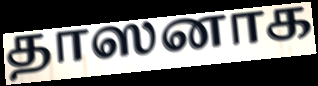
தாஸனாக